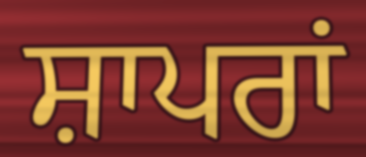
ਸ਼ਾਪਰਾਂ